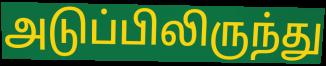
அடுப்பிலிருந்து